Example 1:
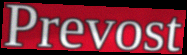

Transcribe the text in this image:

Prevost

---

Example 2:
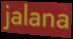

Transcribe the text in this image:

jalana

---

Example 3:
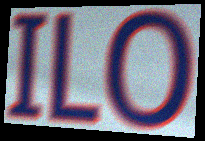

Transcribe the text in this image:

ILO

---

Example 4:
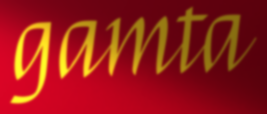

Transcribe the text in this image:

gamta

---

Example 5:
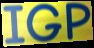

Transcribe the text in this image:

IGP